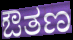
ಔತಣ